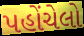
પહોંચેલો